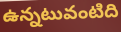
ఉన్నటువంటిది